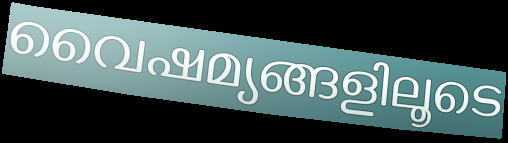
വൈഷമ്യങ്ങളിലൂടെ